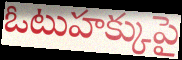
ఓటుహక్కుపై